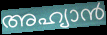
അഹ്യാൻ